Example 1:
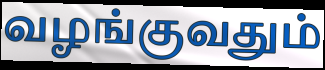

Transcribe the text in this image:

வழங்குவதும்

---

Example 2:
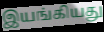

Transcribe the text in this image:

இயங்கியது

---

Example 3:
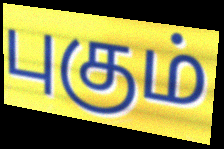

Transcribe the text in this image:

புகும்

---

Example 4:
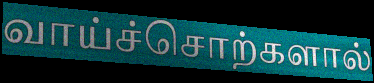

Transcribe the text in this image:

வாய்ச்சொற்களால்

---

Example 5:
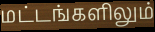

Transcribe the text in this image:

மட்டங்களிலும்